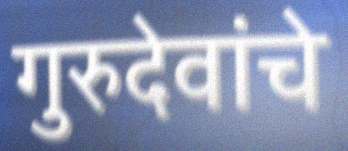
गुरुदेवांचे